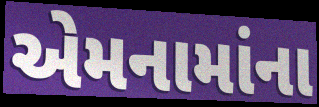
એમનામાંના